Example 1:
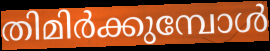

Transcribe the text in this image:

തിമിർക്കുമ്പോൾ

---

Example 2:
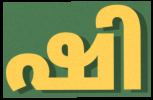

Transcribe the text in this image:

ഷി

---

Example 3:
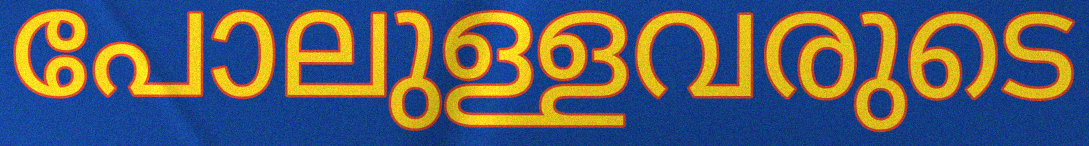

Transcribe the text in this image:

പോലുള്ളവരുടെ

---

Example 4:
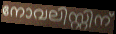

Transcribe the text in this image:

നോവലിസ്റ്റിന്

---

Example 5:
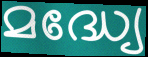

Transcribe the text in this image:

മദ്ധ്യേ